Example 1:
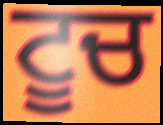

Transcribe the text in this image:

ਟੂਚ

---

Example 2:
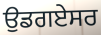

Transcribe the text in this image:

ਉਡਗਏਸਰ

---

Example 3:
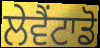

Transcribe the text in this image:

ਲੇਵੈਂਟਾਡੋ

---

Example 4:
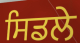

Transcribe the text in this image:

ਸਿਡਲੇ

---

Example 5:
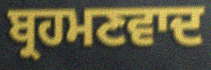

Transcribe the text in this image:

ਬ੍ਰਹਮਣਵਾਦ